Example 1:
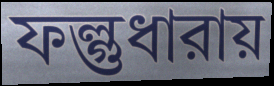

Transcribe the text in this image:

ফল্গুধারায়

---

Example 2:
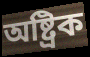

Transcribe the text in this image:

অষ্ট্রিক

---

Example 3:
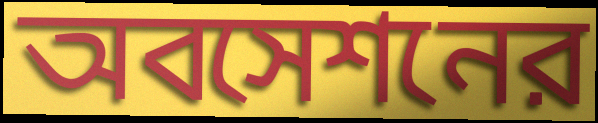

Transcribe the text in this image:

অবসেশনের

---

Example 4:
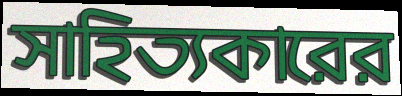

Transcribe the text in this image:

সাহিত্যকারের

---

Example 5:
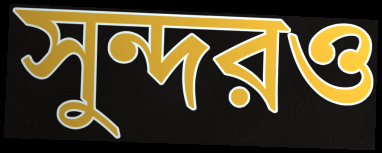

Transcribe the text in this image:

সুন্দরও